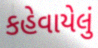
કહેવાયેલું